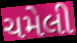
ચમેલી